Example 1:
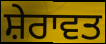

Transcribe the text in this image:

ਸ਼ੇਰਾਵਤ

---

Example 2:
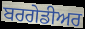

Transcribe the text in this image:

ਬਰਗੇਡੀਅਰ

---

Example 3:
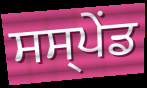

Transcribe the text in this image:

ਸਸ੍ਪੇੰਡ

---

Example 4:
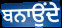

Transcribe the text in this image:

ਬਨਾਉਂਦੇ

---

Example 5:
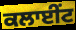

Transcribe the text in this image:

ਕਲਾਈਂਟ